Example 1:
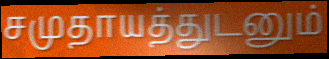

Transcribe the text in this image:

சமுதாயத்துடனும்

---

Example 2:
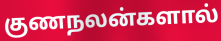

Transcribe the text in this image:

குணநலன்களால்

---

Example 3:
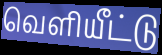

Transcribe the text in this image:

வெளியீட்டு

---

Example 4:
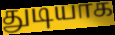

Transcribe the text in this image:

துடியாக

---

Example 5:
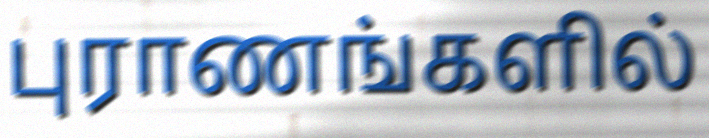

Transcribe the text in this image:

புராணங்களில்